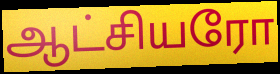
ஆட்சியரோ